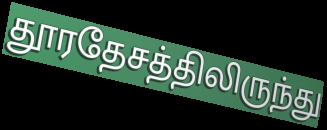
தூரதேசத்திலிருந்து